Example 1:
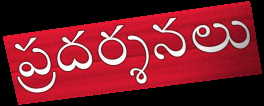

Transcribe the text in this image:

ప్రదర్శనలు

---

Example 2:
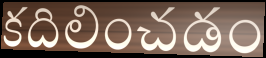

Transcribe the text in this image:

కదిలించడం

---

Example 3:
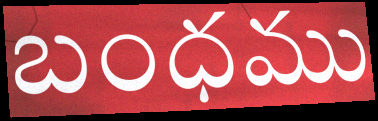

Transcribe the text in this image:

బంధము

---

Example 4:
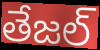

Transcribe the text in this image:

తేజల్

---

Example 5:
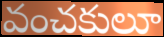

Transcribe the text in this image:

వంచకులూ